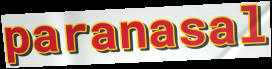
paranasal